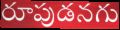
రూపుడనగు